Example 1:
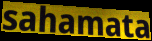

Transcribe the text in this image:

sahamata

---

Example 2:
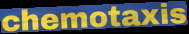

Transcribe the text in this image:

chemotaxis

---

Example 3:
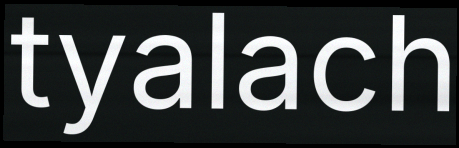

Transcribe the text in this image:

tyalach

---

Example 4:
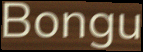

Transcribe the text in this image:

Bongu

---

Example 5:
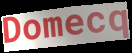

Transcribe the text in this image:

Domecq